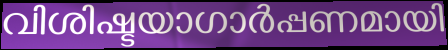
വിശിഷ്ടയാഗാർപ്പണമായി